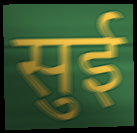
सुई